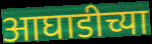
आघाडीच्‍या